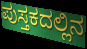
ಪುಸ್ತಕದಲ್ಲಿನ